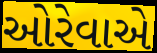
ઓરેવાએ